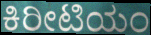
ಕಿರೀಟಿಯಂ